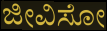
ಜೀವಿಸೋ